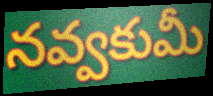
నవ్వకుమీ